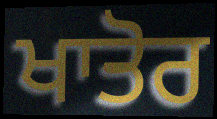
ਖਾਤੋਰ